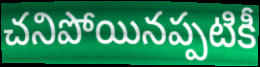
చనిపోయినప్పటికీ